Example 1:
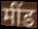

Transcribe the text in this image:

मींड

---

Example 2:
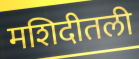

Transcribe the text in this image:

मशिदीतली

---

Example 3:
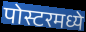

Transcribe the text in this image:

पोस्टरमध्ये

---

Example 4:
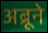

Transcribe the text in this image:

अब्रूने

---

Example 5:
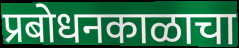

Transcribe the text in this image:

प्रबोधनकाळाचा